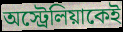
অস্ট্রেলিয়াকেই